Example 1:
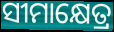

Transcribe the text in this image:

ସୀମାକ୍ଷେତ୍ର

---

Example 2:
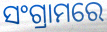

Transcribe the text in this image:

ସଂଗ୍ରାମରେ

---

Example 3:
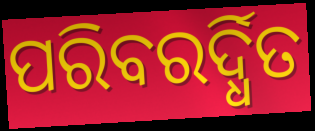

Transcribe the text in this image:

ପରିବରର୍ଦ୍ଧିତ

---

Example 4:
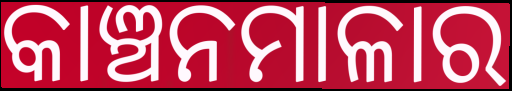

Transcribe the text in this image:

କାଞ୍ଚନମାଳାର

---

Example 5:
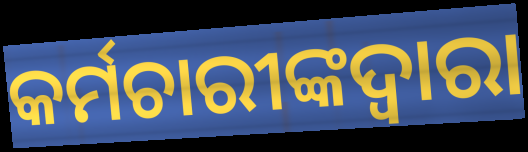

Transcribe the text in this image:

କର୍ମଚାରୀଙ୍କଦ୍ୱାରା